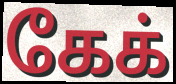
கேக்